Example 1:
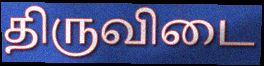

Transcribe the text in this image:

திருவிடை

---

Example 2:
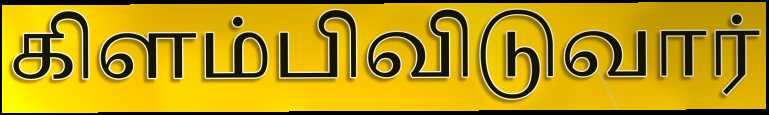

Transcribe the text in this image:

கிளம்பிவிடுவார்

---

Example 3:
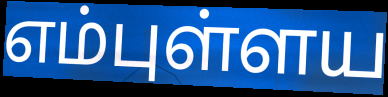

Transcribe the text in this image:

எம்புள்ளய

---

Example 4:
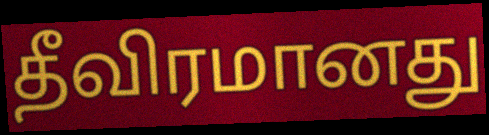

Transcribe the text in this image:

தீவிரமானது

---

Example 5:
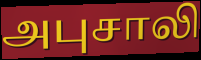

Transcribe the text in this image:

அபுசாலி